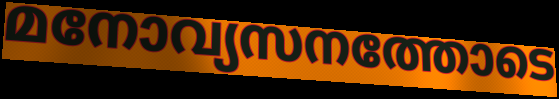
മനോവ്യസനത്തോടെ